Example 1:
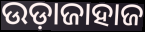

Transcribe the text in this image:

ଉଡ଼ାଜାହାଜ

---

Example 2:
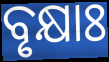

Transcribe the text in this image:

ବୃକ୍ଷାଃ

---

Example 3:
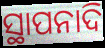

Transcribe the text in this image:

ସ୍ଥାପନାଦି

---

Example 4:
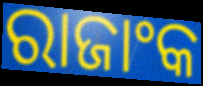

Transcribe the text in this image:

ରାଜାଂକ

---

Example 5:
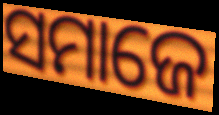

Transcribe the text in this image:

ସମାଜେ